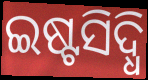
ଇଷ୍ଟସିଦ୍ଧି